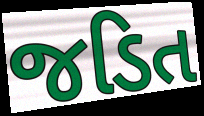
જડિત